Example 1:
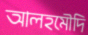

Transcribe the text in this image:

আলহমৌদি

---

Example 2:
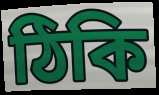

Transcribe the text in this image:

ঠিকি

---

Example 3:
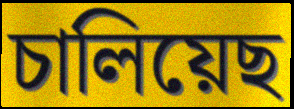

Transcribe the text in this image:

চালিয়েছ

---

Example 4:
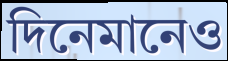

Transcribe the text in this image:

দিনেমানেও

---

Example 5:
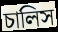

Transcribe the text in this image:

চালিস